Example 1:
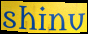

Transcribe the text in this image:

shinu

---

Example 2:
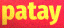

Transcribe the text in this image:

patay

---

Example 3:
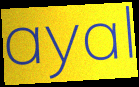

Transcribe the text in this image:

ayal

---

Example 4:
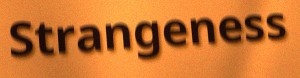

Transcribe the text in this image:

Strangeness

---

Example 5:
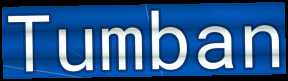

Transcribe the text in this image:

Tumban